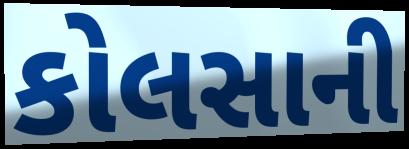
કોલસાની